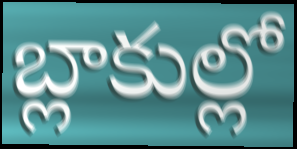
బ్లాకుల్లో